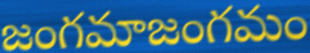
జంగమాజంగమం